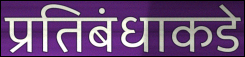
प्रतिबंधाकडे